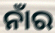
ନାଁର